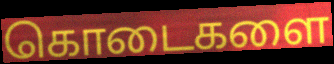
கொடைகளை